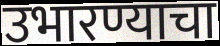
उभारण्याचा